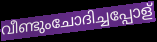
വീണ്ടുംചോദിച്ചപ്പോള്